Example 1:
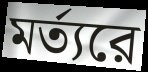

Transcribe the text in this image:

মর্ত্যরে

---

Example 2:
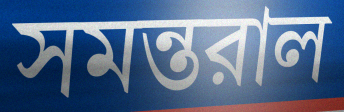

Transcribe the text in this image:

সমন্তরাল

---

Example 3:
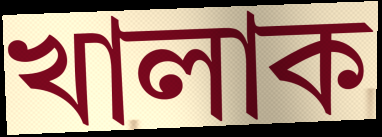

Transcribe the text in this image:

খালাক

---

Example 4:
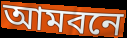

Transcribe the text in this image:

আমবনে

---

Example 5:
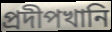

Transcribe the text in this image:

প্রদীপখানি